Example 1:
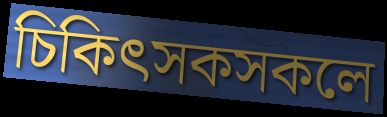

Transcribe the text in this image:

চিকিৎসকসকলে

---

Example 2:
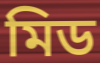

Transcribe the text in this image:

মিড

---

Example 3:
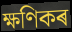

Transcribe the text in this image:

ক্ষণিকৰ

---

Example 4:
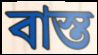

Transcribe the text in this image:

বাস্ত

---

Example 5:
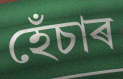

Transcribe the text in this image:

হেঁচাৰ